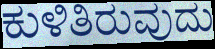
ಕುಳಿತಿರುವುದು